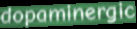
dopaminergic